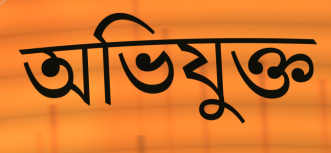
অভিযুক্ত